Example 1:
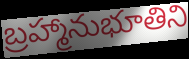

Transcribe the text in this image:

బ్రహ్మానుభూతిని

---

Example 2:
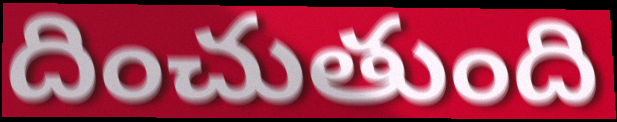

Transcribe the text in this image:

దించుతుంది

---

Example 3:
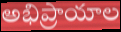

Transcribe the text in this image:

అభిప్రాయాల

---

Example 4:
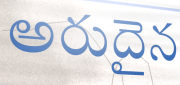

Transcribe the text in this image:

అరుదైన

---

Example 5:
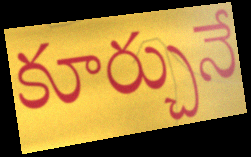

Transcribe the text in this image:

కూర్చునే